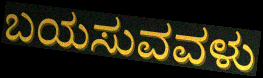
ಬಯಸುವವಳು